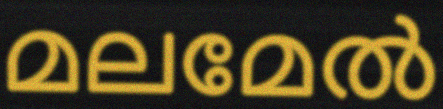
മലമേൽ